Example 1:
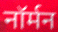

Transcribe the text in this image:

नॉर्मन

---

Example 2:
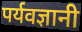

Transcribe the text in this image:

पर्यवज्ञानी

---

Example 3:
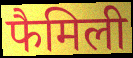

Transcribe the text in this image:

फैमिली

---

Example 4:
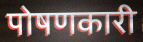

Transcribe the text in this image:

पोषणकारी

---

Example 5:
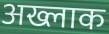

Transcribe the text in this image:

अख्लाक